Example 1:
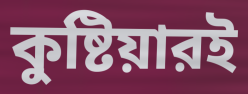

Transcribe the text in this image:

কুষ্টিয়ারই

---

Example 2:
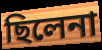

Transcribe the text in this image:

ছিলেনা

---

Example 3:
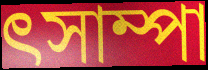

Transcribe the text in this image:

ৎসাম্পা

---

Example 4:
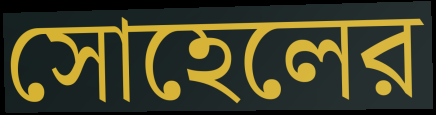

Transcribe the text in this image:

সোহেলের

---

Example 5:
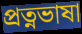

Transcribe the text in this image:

প্রত্নভাষা